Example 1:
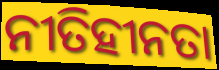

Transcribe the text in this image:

ନୀତିହୀନତା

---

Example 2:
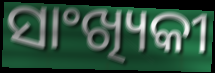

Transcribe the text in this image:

ସାଂଖ୍ୟିକୀ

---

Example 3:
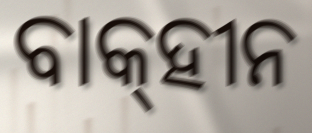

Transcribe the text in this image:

ବାକ୍‌ହୀନ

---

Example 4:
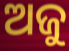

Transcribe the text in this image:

ଅଜୁ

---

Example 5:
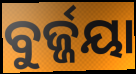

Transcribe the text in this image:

ବୁର୍ଜ୍ଜୟା